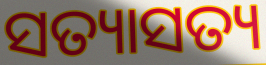
ସତ୍ୟାସତ୍ୟ